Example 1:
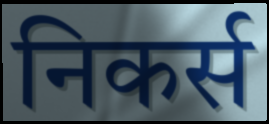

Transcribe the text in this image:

निकर्स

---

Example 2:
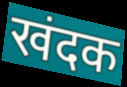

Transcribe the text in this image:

खंदक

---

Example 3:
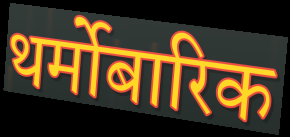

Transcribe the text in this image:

थर्मोबारिक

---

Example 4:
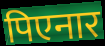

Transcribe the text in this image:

पिएनार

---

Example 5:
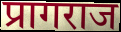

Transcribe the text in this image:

प्रागराज